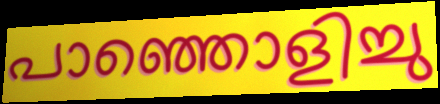
പാഞ്ഞൊളിച്ചു